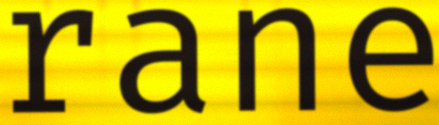
rane